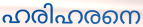
ഹരിഹരനെ